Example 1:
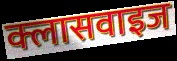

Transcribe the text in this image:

क्लासवाइज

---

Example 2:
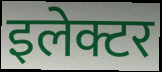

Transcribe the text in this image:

इलेक्टर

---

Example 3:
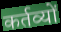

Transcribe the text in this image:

कर्तव्यों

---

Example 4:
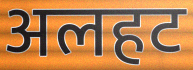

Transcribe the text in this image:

अलहट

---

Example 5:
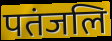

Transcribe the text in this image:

पतंजलि